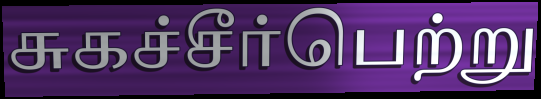
சுகச்சீர்பெற்று